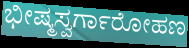
ಭೀಷ್ಮಸ್ವರ್ಗಾರೋಹಣ